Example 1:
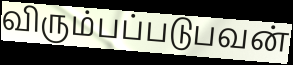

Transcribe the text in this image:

விரும்பப்படுபவன்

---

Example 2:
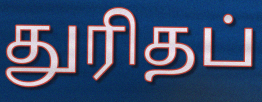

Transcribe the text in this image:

துரிதப்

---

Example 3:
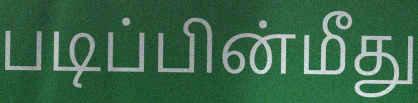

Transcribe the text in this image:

படிப்பின்மீது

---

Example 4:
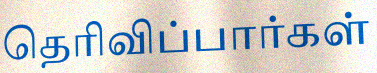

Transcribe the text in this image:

தெரிவிப்பார்கள்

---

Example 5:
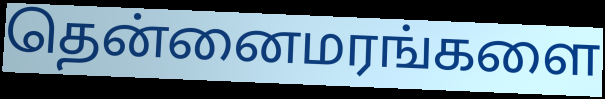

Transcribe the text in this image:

தென்னைமரங்களை